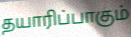
தயாரிப்பாகும்